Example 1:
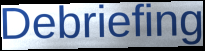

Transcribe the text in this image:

Debriefing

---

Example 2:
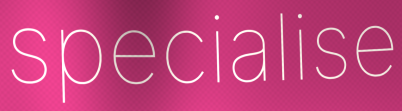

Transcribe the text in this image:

specialise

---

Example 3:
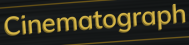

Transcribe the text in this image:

Cinematograph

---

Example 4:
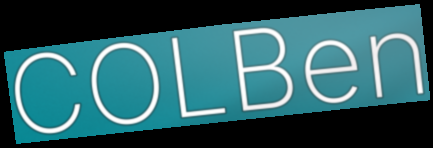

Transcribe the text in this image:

COLBen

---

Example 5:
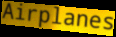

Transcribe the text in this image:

Airplanes